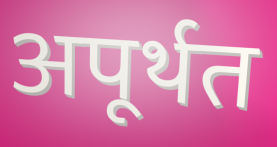
अपूर्थत